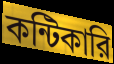
কন্টিকারি